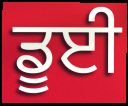
ਡੂਈ